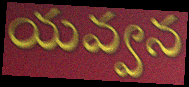
యవ్వన